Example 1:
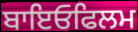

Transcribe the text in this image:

ਬਾਇਓਫਿਲਮ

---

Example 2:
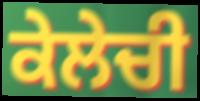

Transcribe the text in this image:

ਕੇਲੇਚੀ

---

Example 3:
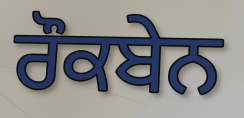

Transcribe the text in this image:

ਰੌਕਬੇਨ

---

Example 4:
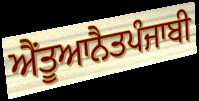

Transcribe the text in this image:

ਐਂਤੂਆਨੈਤਪੰਜਾਬੀ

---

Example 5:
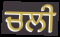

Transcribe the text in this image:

ਚਲੀ